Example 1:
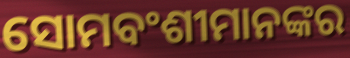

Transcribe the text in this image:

ସୋମବଂଶୀମାନଙ୍କର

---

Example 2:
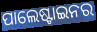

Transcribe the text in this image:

ପାଲେଷ୍ଟାଇନର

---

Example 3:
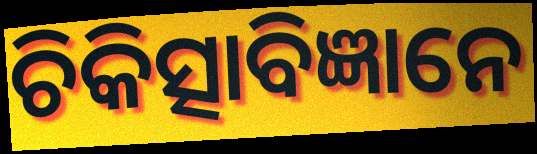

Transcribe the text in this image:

ଚିକିତ୍ସାବିଜ୍ଞାନେ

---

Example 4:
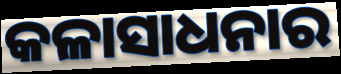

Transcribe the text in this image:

କଳାସାଧନାର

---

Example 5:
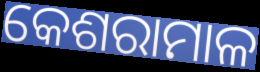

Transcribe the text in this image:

କେଶରାମାଳ